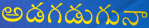
అడగడుగునా